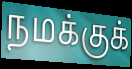
நமக்குக்